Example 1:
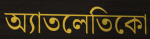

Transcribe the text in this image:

অ্যাতলেতিকো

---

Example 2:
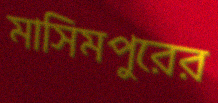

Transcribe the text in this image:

মাসিমপুরের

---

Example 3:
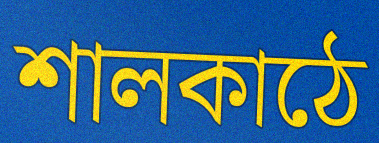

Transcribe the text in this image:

শালকাঠে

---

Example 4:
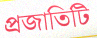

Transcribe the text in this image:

প্রজাতিটি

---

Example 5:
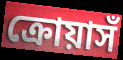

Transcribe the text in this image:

ক্রোয়াসঁ